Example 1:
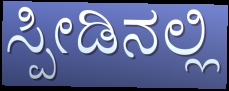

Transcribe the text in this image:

ಸ್ಪೀಡಿನಲ್ಲಿ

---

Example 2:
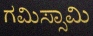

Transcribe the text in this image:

ಗಮಿಸ್ಸಾಮಿ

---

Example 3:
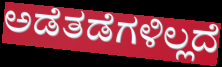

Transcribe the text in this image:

ಅಡೆತಡೆಗಳಿಲ್ಲದೆ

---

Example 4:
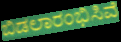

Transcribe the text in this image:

ಬಿಡಲಾರಂಭಿಸಿವೆ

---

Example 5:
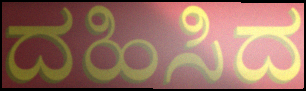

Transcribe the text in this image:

ದಹಿಸಿದ